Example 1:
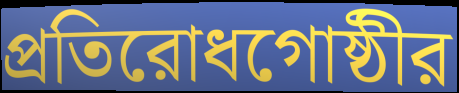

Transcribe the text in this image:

প্রতিরোধগোষ্ঠীর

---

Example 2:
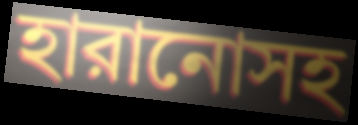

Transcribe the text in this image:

হারানোসহ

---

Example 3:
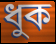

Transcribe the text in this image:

ধুক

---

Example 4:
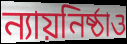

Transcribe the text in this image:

ন্যায়নিষ্ঠাও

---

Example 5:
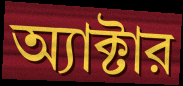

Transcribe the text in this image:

অ্যাক্টার